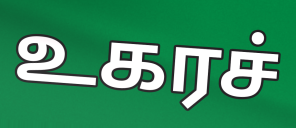
உகரச்